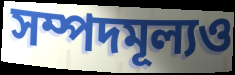
সম্পদমূল্যও